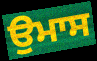
ਉਮਾਸ